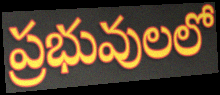
ప్రభువులలో